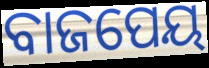
ବାଜପେୟ